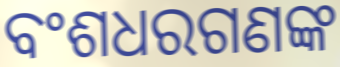
ବଂଶଧରଗଣଙ୍କ